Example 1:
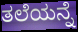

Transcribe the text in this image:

ತಲೆಯನ್ನೆ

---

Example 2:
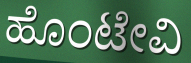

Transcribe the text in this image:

ಹೊಂಟೇವಿ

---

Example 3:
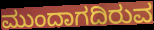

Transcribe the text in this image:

ಮುಂದಾಗದಿರುವ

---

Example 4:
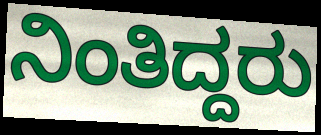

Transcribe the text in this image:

ನಿಂತಿದ್ದರು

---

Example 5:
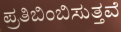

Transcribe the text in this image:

ಪ್ರತಿಬಿಂಬಿಸುತ್ತವೆ